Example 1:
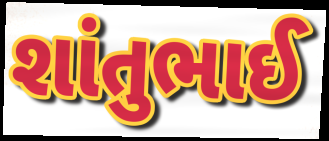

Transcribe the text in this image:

શાંતુભાઈ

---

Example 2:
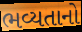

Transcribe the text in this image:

ભવ્યતાનો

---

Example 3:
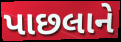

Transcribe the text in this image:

પાછલાને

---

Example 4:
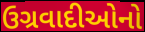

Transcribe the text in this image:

ઉગ્રવાદીઓનો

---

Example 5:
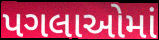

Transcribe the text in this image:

પગલાઓમાં